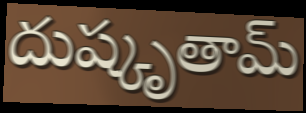
దుష్కృతామ్